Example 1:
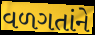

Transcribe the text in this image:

વળગતાંને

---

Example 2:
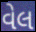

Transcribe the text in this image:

વેલ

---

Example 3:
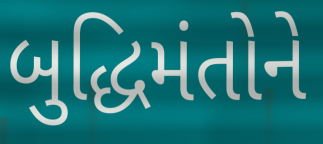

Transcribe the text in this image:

બુદ્ધિમંતોને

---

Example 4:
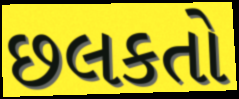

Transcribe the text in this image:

છલકતો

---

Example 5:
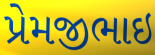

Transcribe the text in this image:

પ્રેમજીભાઇ